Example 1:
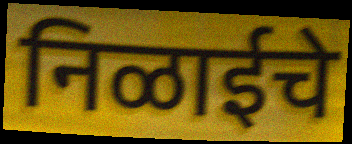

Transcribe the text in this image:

निळाईचे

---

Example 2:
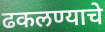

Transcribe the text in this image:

ढकलण्याचे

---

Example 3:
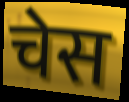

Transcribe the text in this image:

चेस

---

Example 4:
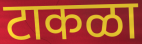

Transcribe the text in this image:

टाकळा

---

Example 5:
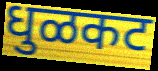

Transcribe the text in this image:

धुळकट